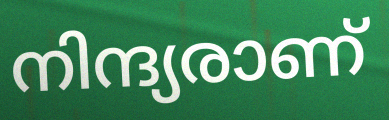
നിന്ദ്യരാണ്